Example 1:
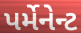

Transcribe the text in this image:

પર્મેનેન્ટ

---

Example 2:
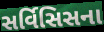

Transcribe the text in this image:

સર્વિસિસના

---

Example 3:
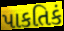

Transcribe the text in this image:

પાકતિકં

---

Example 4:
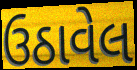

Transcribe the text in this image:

ઉઠાવેલ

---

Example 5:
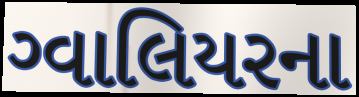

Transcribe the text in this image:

ગ્વાલિયરના